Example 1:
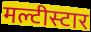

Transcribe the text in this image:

मल्टीस्टार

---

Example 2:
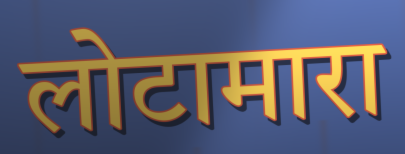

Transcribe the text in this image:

लोटामारा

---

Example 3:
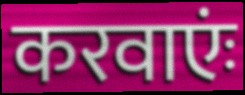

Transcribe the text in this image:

करवाएंः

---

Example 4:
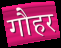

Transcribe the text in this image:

गौहर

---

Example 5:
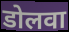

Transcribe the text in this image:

डोलवा